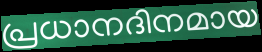
പ്രധാനദിനമായ